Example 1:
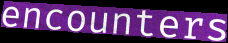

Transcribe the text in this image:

encounters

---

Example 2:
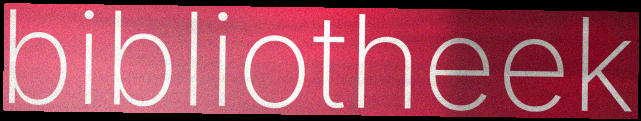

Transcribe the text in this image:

bibliotheek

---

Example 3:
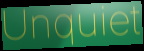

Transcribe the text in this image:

Unquiet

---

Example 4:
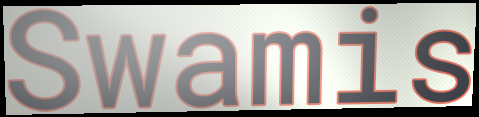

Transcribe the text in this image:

Swamis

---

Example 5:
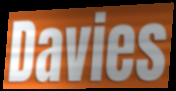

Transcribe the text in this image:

Davies